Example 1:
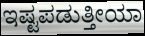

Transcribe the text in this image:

ಇಷ್ಟಪಡುತ್ತೀಯಾ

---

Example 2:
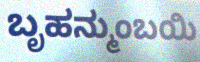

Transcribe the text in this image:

ಬೃಹನ್ಮುಂಬಯಿ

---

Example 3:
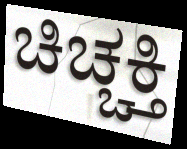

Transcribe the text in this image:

ಚಿಚ್ಚಕ್ತಿ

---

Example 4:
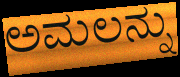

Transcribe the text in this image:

ಅಮಲನ್ನು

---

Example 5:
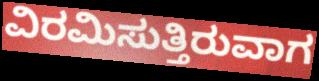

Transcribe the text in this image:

ವಿರಮಿಸುತ್ತಿರುವಾಗ